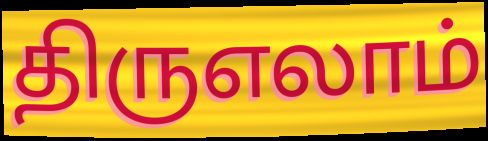
திருஎலாம்